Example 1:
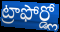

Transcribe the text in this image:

ట్రాఫోర్డ్లో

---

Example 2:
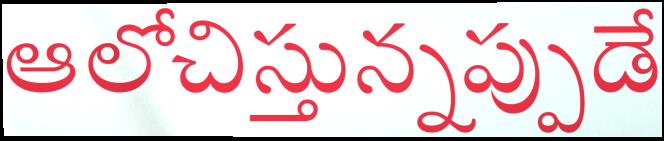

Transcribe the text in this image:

ఆలోచిస్తున్నప్పుడే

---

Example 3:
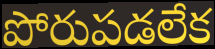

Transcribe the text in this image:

పోరుపడలేక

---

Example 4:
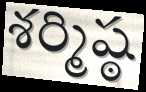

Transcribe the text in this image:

శర్మిష్ఠ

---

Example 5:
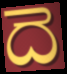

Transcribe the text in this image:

దె